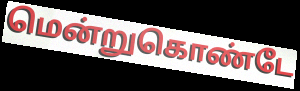
மென்றுகொண்டே